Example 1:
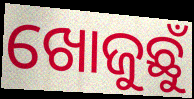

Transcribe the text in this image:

ଖୋଜୁଛୁଁ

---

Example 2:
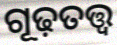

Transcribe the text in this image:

ଗୂଢ଼ତତ୍ତ୍ୱ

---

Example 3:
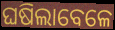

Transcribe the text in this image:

ଘଷିଲାବେଳେ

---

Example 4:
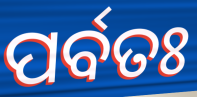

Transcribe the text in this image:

ପର୍ବତଃ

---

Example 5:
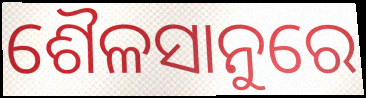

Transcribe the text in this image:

ଶୈଳସାନୁରେ